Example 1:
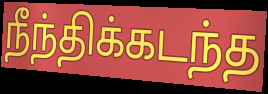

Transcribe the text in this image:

நீந்திக்கடந்த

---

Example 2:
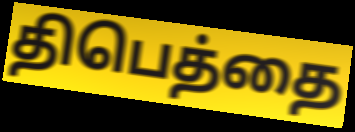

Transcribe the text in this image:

திபெத்தை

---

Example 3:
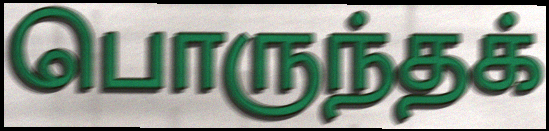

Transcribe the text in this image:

பொருந்தக்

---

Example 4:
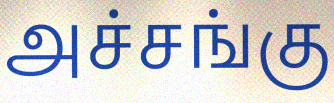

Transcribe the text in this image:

அச்சங்கு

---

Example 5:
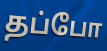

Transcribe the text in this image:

தப்போ